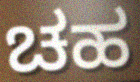
ಚಹ